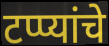
टप्प्यांचे